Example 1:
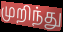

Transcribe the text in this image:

முறிந்து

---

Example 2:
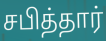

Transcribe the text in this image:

சபித்தார்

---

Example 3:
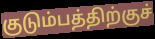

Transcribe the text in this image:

குடும்பத்திற்குச்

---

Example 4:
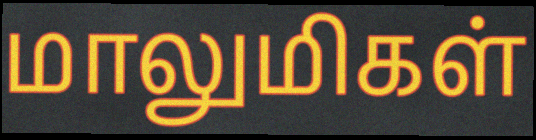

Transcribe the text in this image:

மாலுமிகள்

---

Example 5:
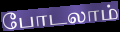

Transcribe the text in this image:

போடலாம்